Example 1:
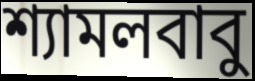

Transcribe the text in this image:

শ্যামলবাবু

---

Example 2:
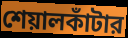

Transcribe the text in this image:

শেয়ালকাঁটার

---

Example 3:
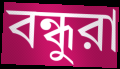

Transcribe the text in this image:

বন্ধুরা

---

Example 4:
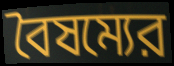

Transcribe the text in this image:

বৈষম্যের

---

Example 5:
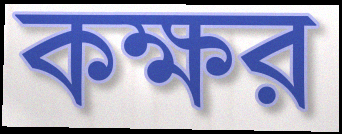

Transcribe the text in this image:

কক্ষর